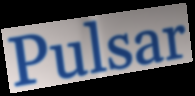
Pulsar